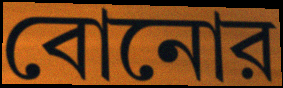
বোনোর